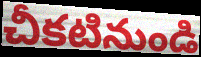
చీకటినుండి